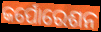
କର୍ପୋରେଶନ